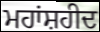
ਮਹਾਂਸ਼ਹੀਦ